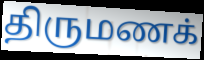
திருமணக்